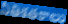
నీతిశతకాలు